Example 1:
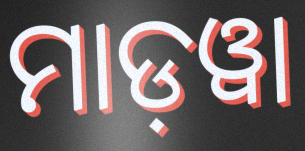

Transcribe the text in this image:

ମାଡ଼ୱା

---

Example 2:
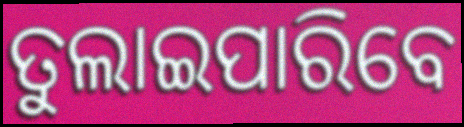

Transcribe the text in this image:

ତୁଲାଇପାରିବେ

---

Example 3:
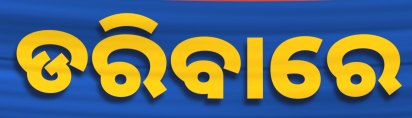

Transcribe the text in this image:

ଡରିବାରେ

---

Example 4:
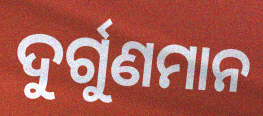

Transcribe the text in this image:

ଦୁର୍ଗୁଣମାନ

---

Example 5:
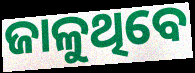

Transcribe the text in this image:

ଜାଳୁଥିବେ